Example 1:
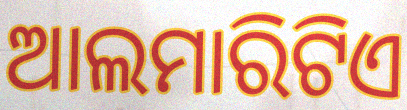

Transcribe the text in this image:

ଆଲମାରିଟିଏ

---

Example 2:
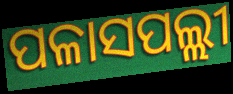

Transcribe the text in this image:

ପଳାସପଲ୍ଲୀ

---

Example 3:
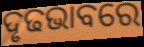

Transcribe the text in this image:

ଦୃଢଭାବରେ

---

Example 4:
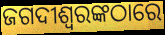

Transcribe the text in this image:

ଜଗଦୀଶ୍ୱରଙ୍କଠାରେ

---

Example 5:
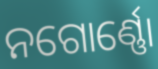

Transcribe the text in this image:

ନଗୋର୍ଣ୍ଣୋ